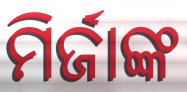
ମିର୍ଜାଙ୍କ